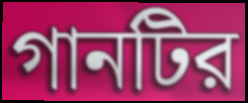
গানটির